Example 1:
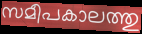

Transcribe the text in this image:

സമീപകാലത്തു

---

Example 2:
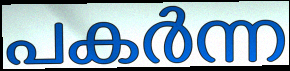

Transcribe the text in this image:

പകർന്ന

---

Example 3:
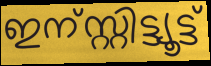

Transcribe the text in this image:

ഇന്സ്റ്റിട്ട്യൂട്ട്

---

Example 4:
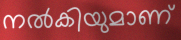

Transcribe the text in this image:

നൽകിയുമാണ്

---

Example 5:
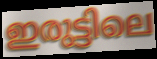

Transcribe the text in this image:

ഇരുട്ടിലെ